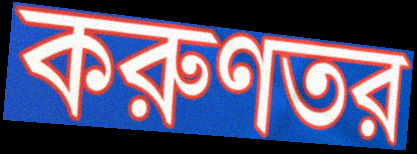
করুণতর